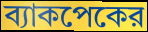
ব্যাকপেকের